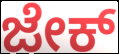
ಜೇಕ್